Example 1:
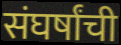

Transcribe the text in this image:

संघर्षांची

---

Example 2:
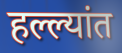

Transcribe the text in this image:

हल्ल्यांत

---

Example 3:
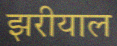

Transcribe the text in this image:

झरीयाल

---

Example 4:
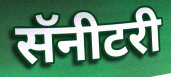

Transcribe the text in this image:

सॅनीटरी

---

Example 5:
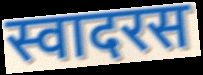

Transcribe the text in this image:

स्वादरस